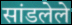
सांडलेले